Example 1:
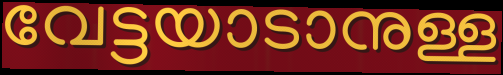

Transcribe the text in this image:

വേട്ടയാടാനുള്ള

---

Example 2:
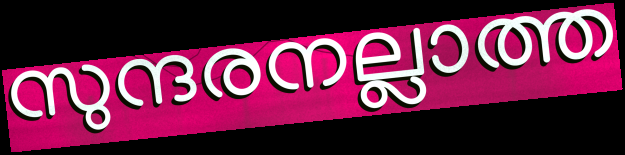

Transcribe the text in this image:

സുന്ദരനല്ലാത്ത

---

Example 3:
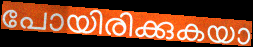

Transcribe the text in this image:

പോയിരിക്കുകയാ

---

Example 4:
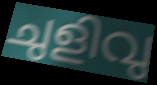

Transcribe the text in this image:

ചുളിവു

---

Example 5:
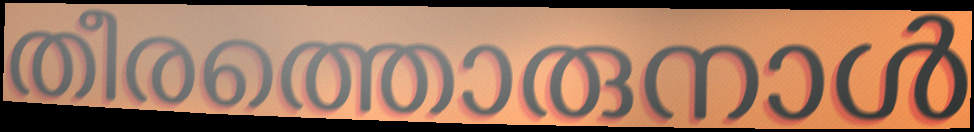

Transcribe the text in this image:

തീരത്തൊരുനാൾ